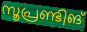
സൂപ്രണ്ടിങ്